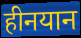
हीनयान